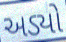
અડ્યો